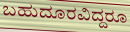
ಬಹುದೂರವಿದ್ದರೂ